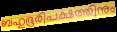
ബഹുഭൂരിപക്ഷത്തിനും